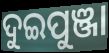
ଦୁଇପୁଞ୍ଜା